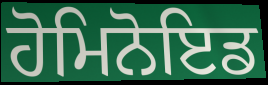
ਹੋਮਿਨੋਇਡ